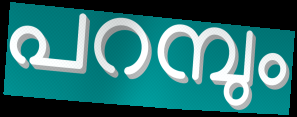
പറമ്പും